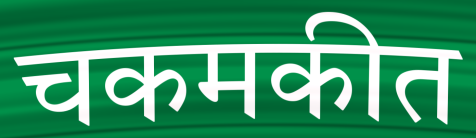
चकमकीत